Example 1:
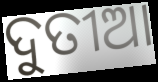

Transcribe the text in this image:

ଦୁତୀଆ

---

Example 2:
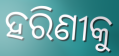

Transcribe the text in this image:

ହରିଣୀକୁ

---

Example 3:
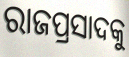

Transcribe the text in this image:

ରାଜପ୍ରସାଦକୁ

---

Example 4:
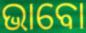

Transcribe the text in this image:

ଭାବୋ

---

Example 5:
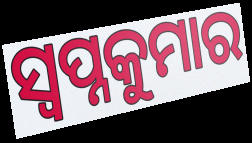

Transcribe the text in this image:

ସ୍ଵପ୍ନକୁମାର